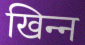
खिन्‍न